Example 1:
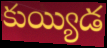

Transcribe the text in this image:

కుయ్యిడ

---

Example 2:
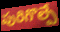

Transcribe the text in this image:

పురిగొల్పే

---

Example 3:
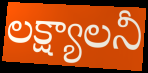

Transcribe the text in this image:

లక్ష్యాలనీ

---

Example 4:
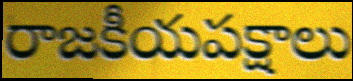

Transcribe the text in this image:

రాజకీయపక్షాలు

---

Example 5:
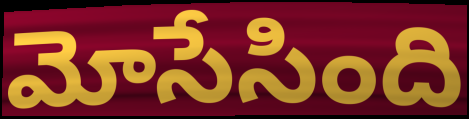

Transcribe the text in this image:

మోసేసింది